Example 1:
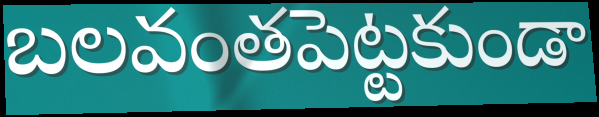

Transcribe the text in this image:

బలవంతపెట్టకుండా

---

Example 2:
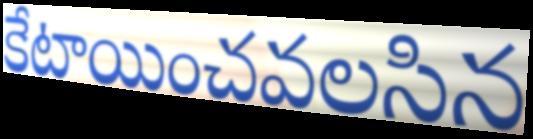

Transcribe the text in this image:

కేటాయించవలసిన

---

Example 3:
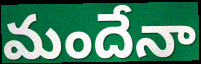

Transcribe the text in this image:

మందేనా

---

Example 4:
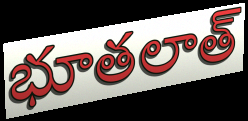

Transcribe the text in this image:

భూతలాత్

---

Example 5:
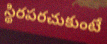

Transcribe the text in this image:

స్థిరపరచుకుంటే